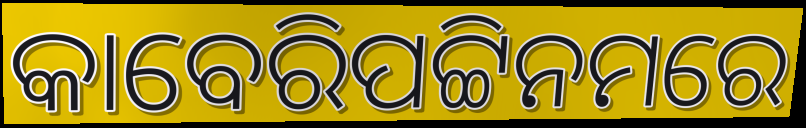
କାବେରିପଟ୍ଟିନମରେ